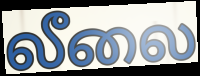
லீலை